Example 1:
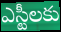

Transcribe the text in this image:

ఎస్టీలకు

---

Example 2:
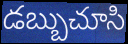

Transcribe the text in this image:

డబ్బుచూసి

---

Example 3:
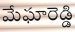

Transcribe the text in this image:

మేఘారెడ్డి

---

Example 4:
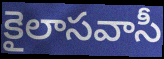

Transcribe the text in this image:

కైలాసవాసీ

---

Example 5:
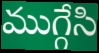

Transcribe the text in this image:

ముగ్గేసి